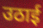
उठाई